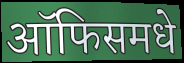
ऑफिसमधे